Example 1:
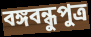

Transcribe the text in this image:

বঙ্গবন্ধুপুত্র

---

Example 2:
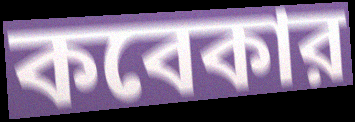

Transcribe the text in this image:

কবেকার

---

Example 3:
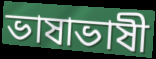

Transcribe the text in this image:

ভাষাভাষী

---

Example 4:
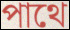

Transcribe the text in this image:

পাথে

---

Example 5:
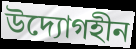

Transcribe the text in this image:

উদ্যোগহীন